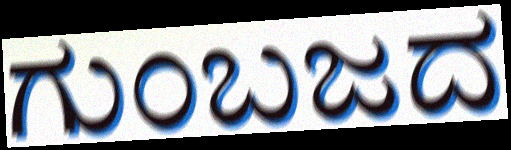
ಗುಂಬಜದ